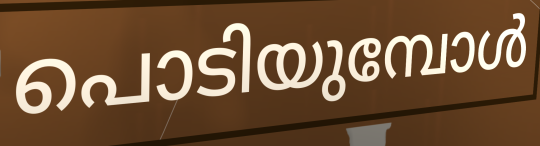
പൊടിയുമ്പോൾ